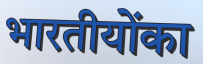
भारतीयोंका